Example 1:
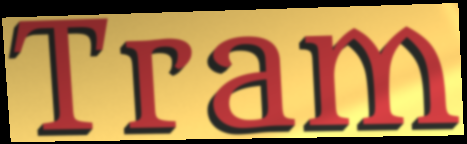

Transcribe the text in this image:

Tram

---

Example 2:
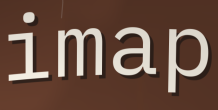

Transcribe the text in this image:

imap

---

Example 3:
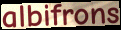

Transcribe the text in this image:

albifrons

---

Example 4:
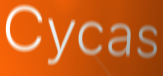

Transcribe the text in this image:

Cycas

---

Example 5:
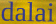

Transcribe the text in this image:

dalai